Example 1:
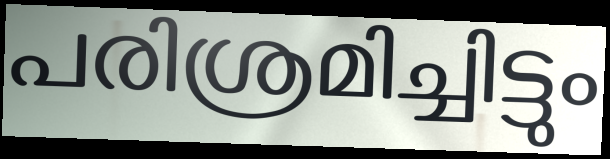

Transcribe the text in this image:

പരിശ്രമിച്ചിട്ടും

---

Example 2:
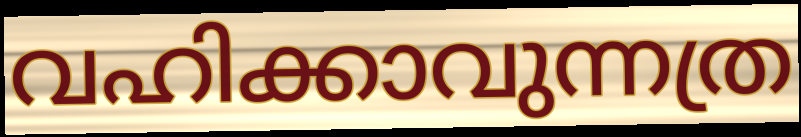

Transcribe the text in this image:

വഹിക്കാവുന്നത്ര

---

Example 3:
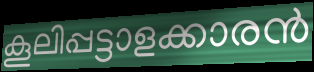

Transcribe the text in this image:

കൂലിപ്പട്ടാളക്കാരൻ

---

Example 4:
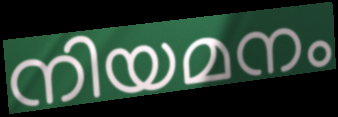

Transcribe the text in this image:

നിയമനം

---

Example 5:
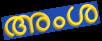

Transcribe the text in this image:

അംശ